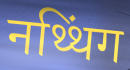
नथ्थिंग